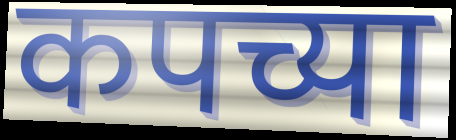
कपच्या